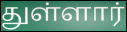
துள்ளார்